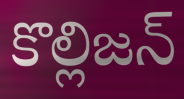
కొల్లిజన్